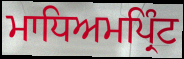
ਮਾਧਿਅਮਪ੍ਰਿੰਟ